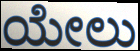
ಯೇಲು